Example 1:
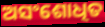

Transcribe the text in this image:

ଅସଂଶୋଧିତ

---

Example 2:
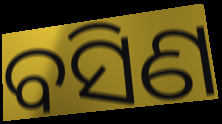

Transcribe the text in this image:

ବସିଣ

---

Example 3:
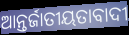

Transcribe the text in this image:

ଆନ୍ତର୍ଜାତୀୟତାବାଦୀ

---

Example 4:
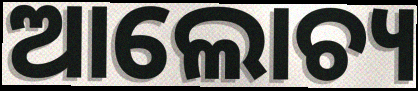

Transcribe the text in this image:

ଆଲୋଚ୍ୟ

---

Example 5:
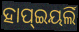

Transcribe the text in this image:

ହାପ୍ଇୟର୍ଲି